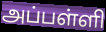
அப்பள்ளி